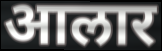
आलार